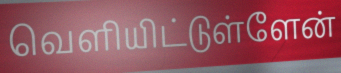
வெளியிட்டுள்ளேன்